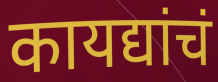
कायद्यांचं